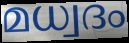
മധ്വദം